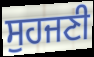
ਸੁਹਜਣੀ